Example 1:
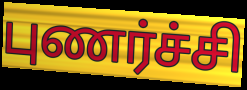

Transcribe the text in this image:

புணர்ச்சி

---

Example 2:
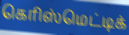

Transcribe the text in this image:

கெரிஸ்மெட்டிக்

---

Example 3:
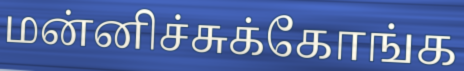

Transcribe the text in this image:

மன்னிச்சுக்கோங்க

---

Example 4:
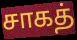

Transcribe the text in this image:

சாகத்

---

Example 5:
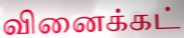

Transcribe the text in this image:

வினைக்கட்